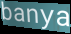
banya